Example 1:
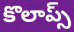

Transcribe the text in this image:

కొలాప్స్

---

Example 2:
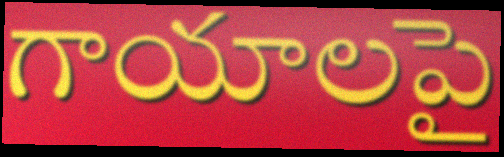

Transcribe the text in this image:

గాయాలపై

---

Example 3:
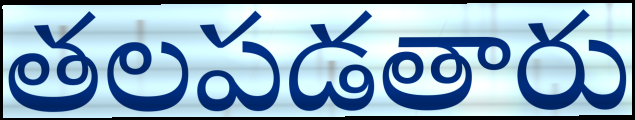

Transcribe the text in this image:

తలపడతారు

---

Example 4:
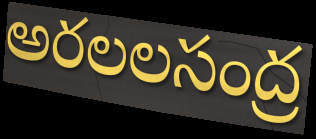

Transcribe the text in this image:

అరలలసంద్ర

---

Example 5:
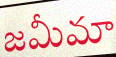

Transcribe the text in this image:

జమీమా